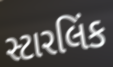
સ્ટારલિંક